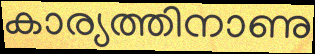
കാര്യത്തിനാണു